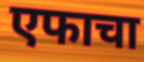
एफाचा